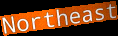
Northeast